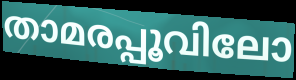
താമരപ്പൂവിലോ